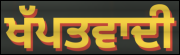
ਖੱਪਤਵਾਦੀ